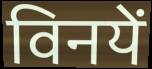
विनयें